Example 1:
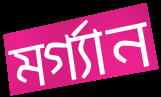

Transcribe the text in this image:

মর্গ্যান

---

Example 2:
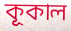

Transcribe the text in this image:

কূকাল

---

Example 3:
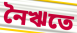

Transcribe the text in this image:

নৈঋতে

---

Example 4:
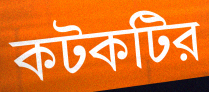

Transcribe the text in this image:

কটকটির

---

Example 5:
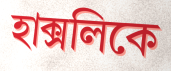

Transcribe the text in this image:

হাক্সলিকে